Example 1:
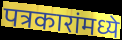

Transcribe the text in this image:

पत्रकारांमध्ये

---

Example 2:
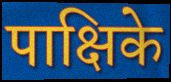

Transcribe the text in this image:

पाक्षिके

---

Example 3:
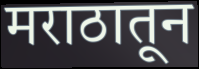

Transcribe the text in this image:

मराठातून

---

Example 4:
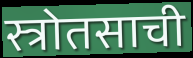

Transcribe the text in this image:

स्त्रोतसाची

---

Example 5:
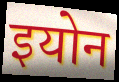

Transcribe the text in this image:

इयोन